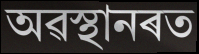
অৱস্থানৰত